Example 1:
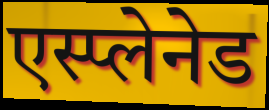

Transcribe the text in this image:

एस्प्लेनेड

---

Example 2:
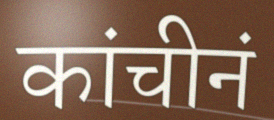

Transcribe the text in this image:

कांचीनं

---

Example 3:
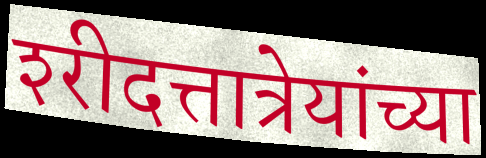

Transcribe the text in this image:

श्रीदत्तात्रेयांच्या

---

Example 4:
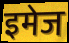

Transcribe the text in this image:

इमेज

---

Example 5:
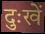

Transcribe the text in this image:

दुःखें